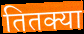
तितक्या